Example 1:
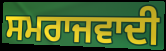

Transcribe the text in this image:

ਸਮਰਾਜਵਾਦੀ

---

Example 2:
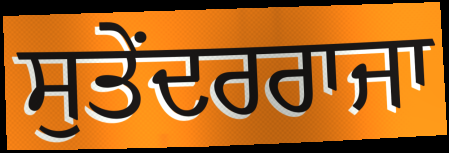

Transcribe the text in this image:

ਸੁਤੇਂਦਰਰਾਜਾ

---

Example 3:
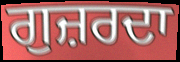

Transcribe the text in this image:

ਗੁਜ਼ਰਦਾ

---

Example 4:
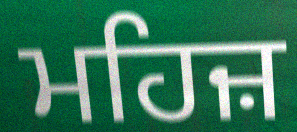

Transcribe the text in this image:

ਮਹਿਜ਼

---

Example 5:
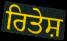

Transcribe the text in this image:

ਰਿਤੇਸ਼